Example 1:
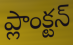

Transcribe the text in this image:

ప్లాంక్టన్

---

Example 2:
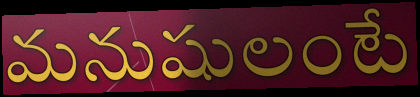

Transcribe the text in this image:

మనుషులంటే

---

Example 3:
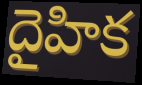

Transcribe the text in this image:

దైహిక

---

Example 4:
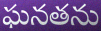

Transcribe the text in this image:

ఘనతను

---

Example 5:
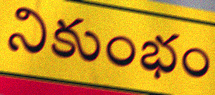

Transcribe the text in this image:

నికుంభం